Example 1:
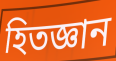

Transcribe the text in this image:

হিতজ্ঞান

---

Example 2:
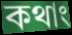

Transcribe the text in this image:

কথাং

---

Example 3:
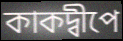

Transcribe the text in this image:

কাকদ্বীপে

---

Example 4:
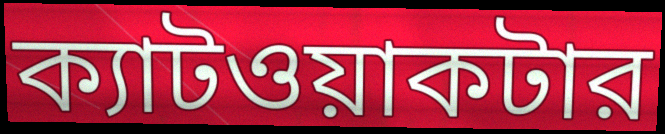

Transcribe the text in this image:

ক্যাটওয়াকটার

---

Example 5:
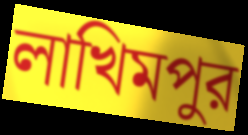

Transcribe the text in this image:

লাখিমপুর